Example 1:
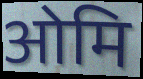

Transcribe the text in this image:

ओमि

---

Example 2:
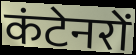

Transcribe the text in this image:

कंटेनरों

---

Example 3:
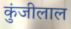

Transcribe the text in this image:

कुंजीलाल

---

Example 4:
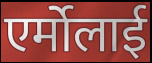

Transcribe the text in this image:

एर्मोलाई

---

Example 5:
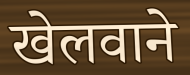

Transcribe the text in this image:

खेलवाने